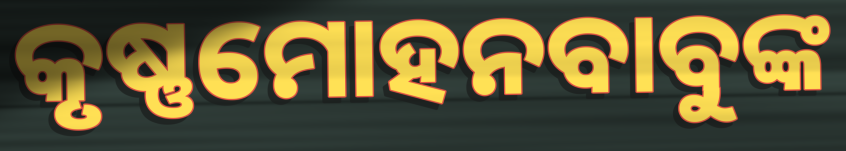
କୃଷ୍ଣମୋହନବାବୁଙ୍କ